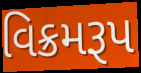
વિક્રમરૂપ